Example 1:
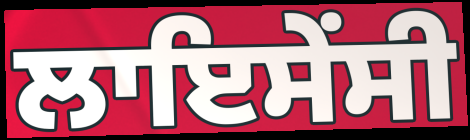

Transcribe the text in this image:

ਲਾਇਸੇਂਸੀ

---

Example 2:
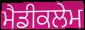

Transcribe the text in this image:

ਮੈਡੀਕਲੇਮ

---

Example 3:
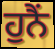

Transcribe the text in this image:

ਹੁਨੈਂ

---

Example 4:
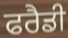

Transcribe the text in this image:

ਫਰੈਡੀ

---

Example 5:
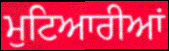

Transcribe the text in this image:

ਮੁਟਿਆਰੀਆਂ